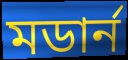
মডার্ন